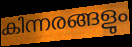
കിന്നരങ്ങളും